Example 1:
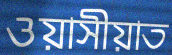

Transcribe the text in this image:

ওয়াসীয়াত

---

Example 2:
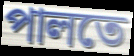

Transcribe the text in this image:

পালতে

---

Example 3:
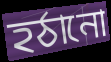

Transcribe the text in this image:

হঠানো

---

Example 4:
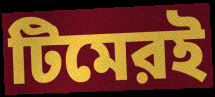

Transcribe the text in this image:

টিমেরই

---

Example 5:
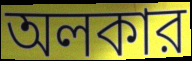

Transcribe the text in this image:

অলকার